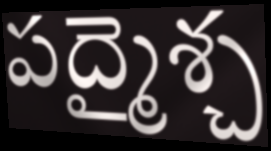
పద్మైశ్చ